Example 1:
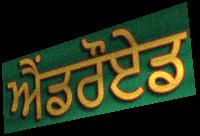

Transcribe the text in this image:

ਐਂਡਰੌਏਡ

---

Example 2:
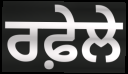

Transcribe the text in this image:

ਰਫ਼ੇਲੇ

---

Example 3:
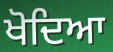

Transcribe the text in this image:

ਖੋਦਿਆ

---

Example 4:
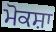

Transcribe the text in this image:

ਮੋਕਸ਼ਾ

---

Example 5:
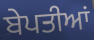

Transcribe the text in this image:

ਬੇਪਤੀਆਂ